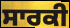
ਸਾਰਕੀ